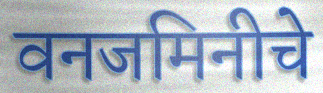
वनजमिनीचे